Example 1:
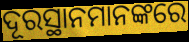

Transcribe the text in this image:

ଦୂରସ୍ଥାନମାନଙ୍କରେ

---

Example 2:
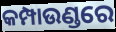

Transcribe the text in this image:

କମ୍ପାଉଣ୍ଡରେ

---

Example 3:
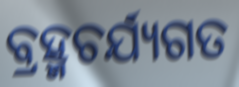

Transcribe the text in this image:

ବ୍ରହ୍ମଚର୍ଯ୍ୟଗତ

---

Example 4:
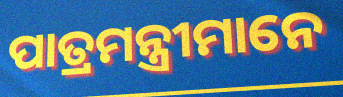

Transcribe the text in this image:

ପାତ୍ରମନ୍ତ୍ରୀମାନେ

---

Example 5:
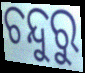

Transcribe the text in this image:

ଚନ୍ଦୁରୁ